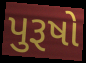
પુરૂષો